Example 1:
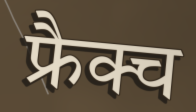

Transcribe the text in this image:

फ्रैक्च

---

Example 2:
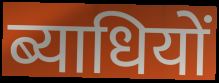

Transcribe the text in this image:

ब्याधियों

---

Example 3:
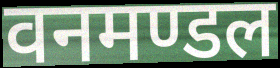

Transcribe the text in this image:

वनमण्डल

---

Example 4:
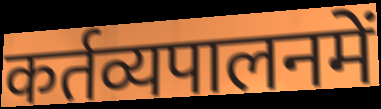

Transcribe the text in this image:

कर्तव्यपालनमें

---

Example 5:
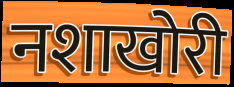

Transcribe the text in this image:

नशाखोरी